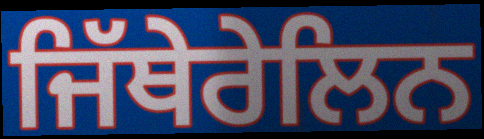
ਜਿੱਥੇਰੇਲਿਨ